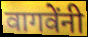
वागवेंनी